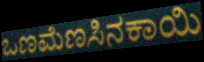
ಒಣಮೆಣಸಿನಕಾಯಿ